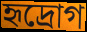
হৃদ্রোগ